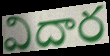
విదార